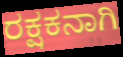
ರಕ್ಷಕನಾಗಿ